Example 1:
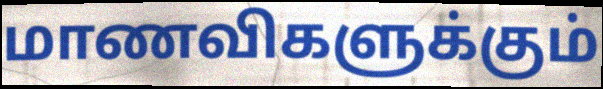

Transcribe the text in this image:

மாணவிகளுக்கும்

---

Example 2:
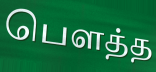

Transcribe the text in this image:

பௌத்த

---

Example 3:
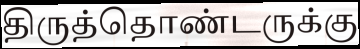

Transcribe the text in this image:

திருத்தொண்டருக்கு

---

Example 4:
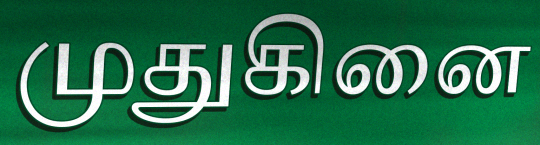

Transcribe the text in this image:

முதுகினை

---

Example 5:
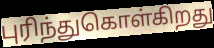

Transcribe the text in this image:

புரிந்துகொள்கிறது